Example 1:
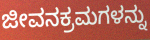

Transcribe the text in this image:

ಜೀವನಕ್ರಮಗಳನ್ನು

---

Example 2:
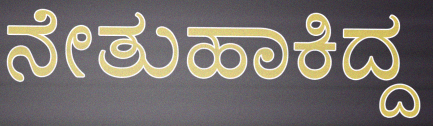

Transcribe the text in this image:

ನೇತುಹಾಕಿದ್ದ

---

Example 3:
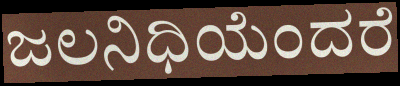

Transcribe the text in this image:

ಜಲನಿಧಿಯೆಂದರೆ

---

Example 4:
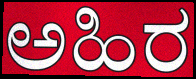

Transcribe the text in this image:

ಅಹಿರ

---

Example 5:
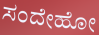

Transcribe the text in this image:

ಸಂದೇಹೋ